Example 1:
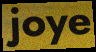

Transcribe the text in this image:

joye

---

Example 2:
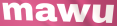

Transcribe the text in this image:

mawu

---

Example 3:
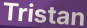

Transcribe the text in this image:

Tristan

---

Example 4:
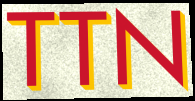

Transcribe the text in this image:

TTN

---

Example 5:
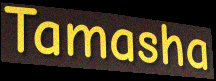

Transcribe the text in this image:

Tamasha